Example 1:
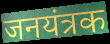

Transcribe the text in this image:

जनयंत्रक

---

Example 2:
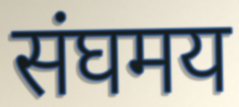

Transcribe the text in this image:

संघमय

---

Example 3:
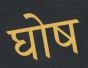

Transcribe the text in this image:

घोष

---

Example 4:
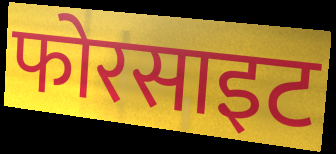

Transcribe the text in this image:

फोरसाइट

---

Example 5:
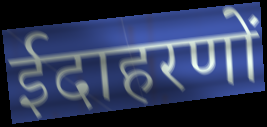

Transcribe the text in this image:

ईदाहरणों